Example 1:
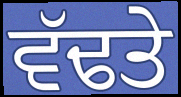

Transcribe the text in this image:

ਵੱਢਤੇ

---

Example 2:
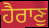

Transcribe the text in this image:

ਹੈਰਾਣੁ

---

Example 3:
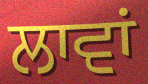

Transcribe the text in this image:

ਲਾਵਾਂ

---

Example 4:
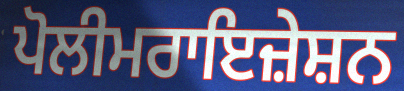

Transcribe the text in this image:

ਪੋਲੀਮਰਾਇਜ਼ੇਸ਼ਨ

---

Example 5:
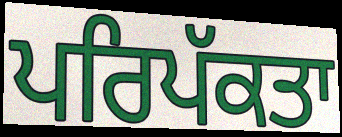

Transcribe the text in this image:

ਪਰਿਪੱਕਤਾ